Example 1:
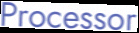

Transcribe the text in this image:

Processor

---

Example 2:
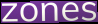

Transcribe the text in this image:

zones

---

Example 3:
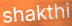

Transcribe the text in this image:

shakthi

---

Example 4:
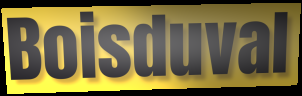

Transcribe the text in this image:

Boisduval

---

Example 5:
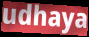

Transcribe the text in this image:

udhaya